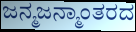
ಜನ್ಮಜನ್ಮಾಂತರದ